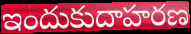
ఇందుకుదాహరణ